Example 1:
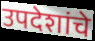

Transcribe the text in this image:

उपदेशांचे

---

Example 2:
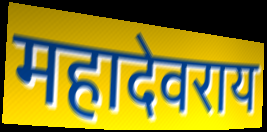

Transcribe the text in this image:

महादेवराय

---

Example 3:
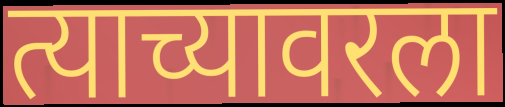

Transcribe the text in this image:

त्याच्यावरला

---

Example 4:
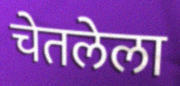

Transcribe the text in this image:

चेतलेला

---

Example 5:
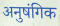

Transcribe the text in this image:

अनुषंगिक